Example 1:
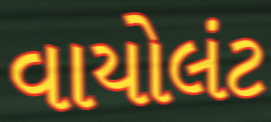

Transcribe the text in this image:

વાયોલંટ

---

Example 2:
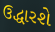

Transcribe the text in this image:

ઉદ્ધારશે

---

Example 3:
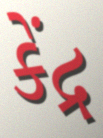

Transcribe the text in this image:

કેંદ્ર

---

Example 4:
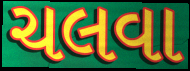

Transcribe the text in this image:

ચલવા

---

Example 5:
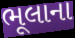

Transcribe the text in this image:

ભૂલાના